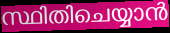
സ്ഥിതിചെയ്യാൻ